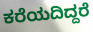
ಕರೆಯದಿದ್ದರೆ